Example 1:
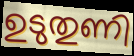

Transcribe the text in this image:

ഉടുതുണി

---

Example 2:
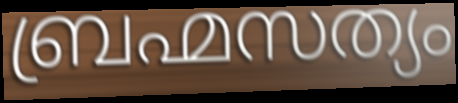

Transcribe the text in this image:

ബ്രഹ്മസത്യം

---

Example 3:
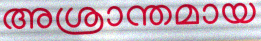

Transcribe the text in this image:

അശ്രാന്തമായ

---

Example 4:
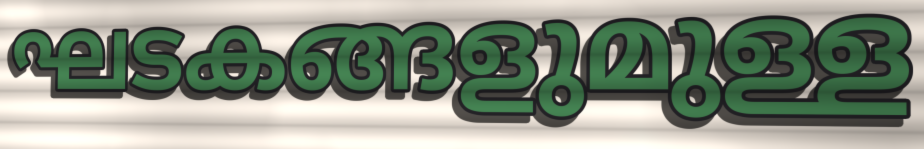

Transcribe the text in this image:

ഘടകങ്ങളുമുള്ള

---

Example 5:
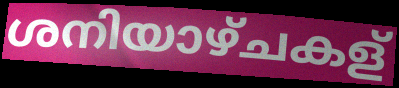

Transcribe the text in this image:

ശനിയാഴ്ചകള്